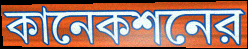
কানেকশনের